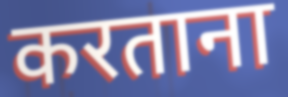
करताना